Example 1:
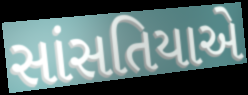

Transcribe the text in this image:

સાંસતિયાએ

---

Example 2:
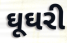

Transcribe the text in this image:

ઘૂઘરી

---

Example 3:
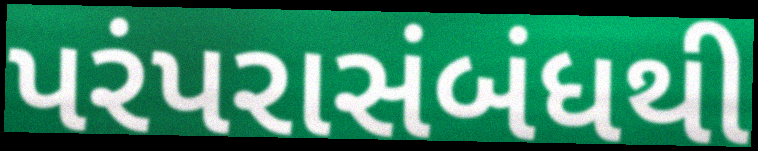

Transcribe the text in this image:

પરંપરાસંબંધથી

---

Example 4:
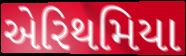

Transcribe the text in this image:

એરિથમિયા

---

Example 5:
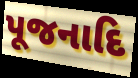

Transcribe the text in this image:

પૂજનાદિ